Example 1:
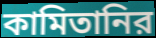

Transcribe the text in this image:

কামিতানির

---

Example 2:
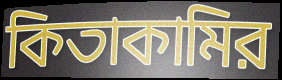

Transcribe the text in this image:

কিতাকামির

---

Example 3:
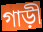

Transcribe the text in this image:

গাড়ী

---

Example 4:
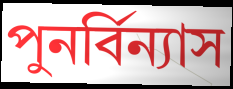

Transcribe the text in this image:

পুনর্বিন্যাস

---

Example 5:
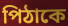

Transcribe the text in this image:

পিঠাকে